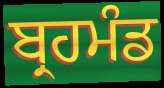
ਬ੍ਰਹਮੰਡ